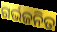
ଗର୍ଭଜନିତ